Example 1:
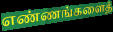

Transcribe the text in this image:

எண்ணங்களைத்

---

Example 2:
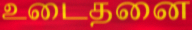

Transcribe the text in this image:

உடைதனை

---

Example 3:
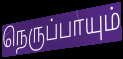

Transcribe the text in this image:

நெருப்பாயும்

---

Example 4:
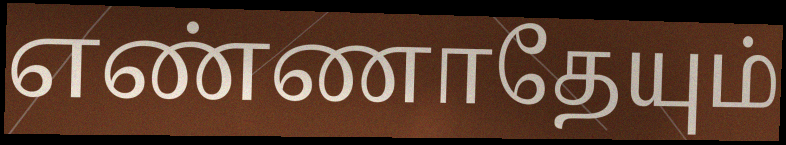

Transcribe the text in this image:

எண்ணாதேயும்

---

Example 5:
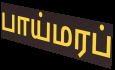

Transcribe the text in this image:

பாய்மரப்